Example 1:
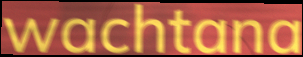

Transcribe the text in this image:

wachtana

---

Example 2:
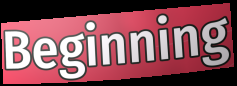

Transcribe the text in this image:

Beginning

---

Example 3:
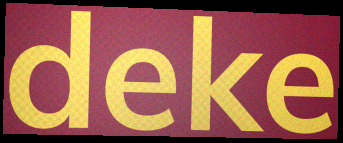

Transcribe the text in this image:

deke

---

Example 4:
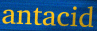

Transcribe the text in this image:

antacid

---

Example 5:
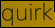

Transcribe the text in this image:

quirk